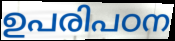
ഉപരിപഠന